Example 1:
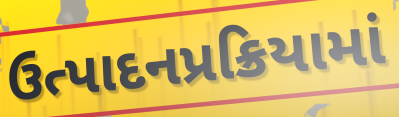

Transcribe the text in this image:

ઉત્પાદનપ્રક્રિયામાં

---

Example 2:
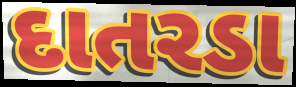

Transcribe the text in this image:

દાતરડા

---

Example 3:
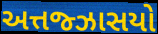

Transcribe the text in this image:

અત્તજ્ઝાસયો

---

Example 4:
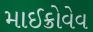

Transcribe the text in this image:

માઈક્રોવેવ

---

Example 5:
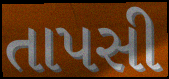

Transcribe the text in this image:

તાપસી